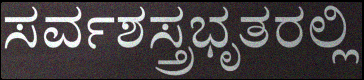
ಸರ್ವಶಸ್ತ್ರಭೃತರಲ್ಲಿ